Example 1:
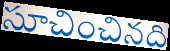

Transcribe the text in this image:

సూచించినది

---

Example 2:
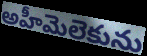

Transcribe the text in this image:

అహీమెలెకును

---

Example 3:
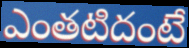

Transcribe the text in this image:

ఎంతటిదంటే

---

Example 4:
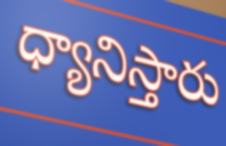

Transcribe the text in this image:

ధ్యానిస్తారు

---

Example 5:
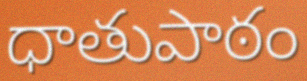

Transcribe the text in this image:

ధాతుపాఠం